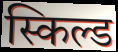
स्किल्ड